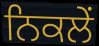
ਨਿਕਲੇਂ